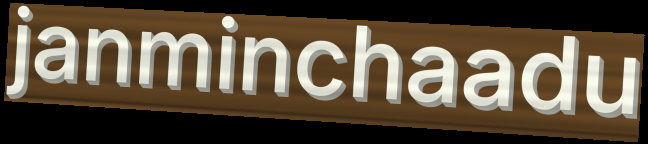
janminchaadu